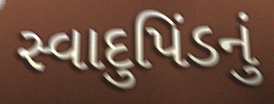
સ્વાદુપિંડનું